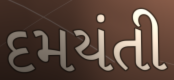
દમયંતી